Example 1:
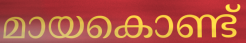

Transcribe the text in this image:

മായകൊണ്ട്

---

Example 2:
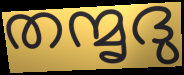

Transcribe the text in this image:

തന്മൃദു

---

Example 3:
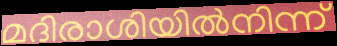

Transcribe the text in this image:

മദിരാശിയിൽനിന്ന്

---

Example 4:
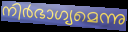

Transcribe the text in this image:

നിർഭാഗ്യമെന്നു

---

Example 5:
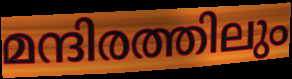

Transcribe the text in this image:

മന്ദിരത്തിലും